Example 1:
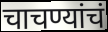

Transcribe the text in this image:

चाचण्यांचं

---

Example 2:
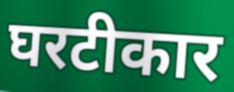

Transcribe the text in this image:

घरटीकार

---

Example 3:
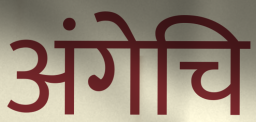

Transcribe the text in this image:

अंगेचि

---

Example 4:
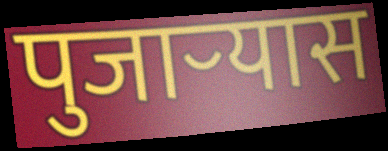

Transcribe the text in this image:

पुजाऱ्यास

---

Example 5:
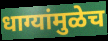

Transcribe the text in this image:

धाग्यांमुळेच